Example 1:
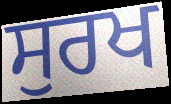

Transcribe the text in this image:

ਸੁਰਖ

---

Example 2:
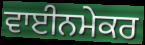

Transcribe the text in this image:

ਵਾਈਨਮੇਕਰ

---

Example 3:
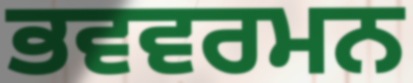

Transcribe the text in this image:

ਭਵਵਰਮਨ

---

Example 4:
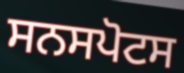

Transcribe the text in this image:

ਸਨਸਪੋਟਸ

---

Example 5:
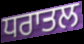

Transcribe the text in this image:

ਧਰਾਤਲ